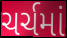
ચર્ચમાં